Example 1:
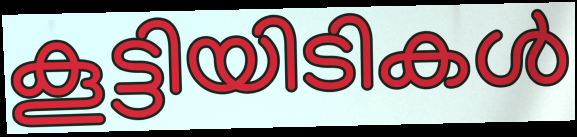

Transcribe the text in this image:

കൂട്ടിയിടികൾ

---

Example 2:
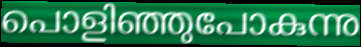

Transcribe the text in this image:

പൊളിഞ്ഞുപോകുന്നു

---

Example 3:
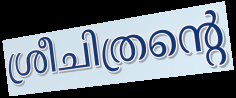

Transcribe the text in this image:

ശ്രീചിത്രന്റെ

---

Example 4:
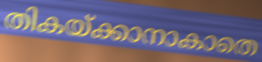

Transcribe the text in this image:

തികയ്ക്കാനാകാതെ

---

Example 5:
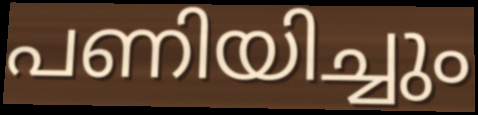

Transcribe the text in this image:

പണിയിച്ചും